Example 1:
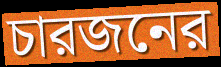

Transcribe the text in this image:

চারজনের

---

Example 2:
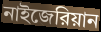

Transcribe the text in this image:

নাইজেরিয়ান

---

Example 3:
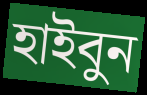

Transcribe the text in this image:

হাইবুন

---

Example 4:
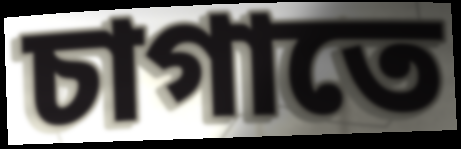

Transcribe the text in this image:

চাগাতে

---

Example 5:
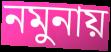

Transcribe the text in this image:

নমুনায়